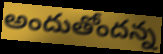
అందుతోందన్న